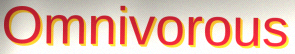
Omnivorous